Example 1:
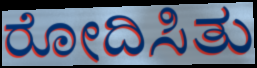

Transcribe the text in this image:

ರೋದಿಸಿತು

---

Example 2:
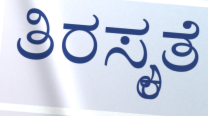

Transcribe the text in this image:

ತಿರಸ್ಕೃತೆ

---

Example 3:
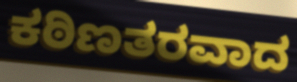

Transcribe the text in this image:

ಕಠಿಣತರವಾದ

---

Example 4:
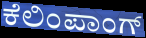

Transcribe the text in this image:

ಕೆಲಿಂಪಾಂಗ್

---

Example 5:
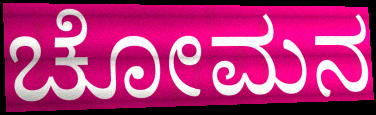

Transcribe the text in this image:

ಚೋಮನ